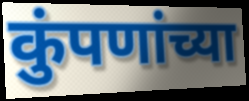
कुंपणांच्या